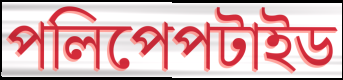
পলিপেপটাইড